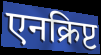
एनक्रिप्ट